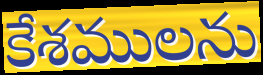
కేశములను